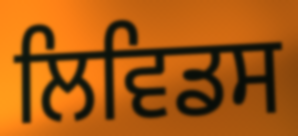
ਲਿਵਿਡਸ